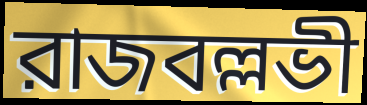
রাজবল্লভী